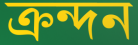
ক্রন্দন